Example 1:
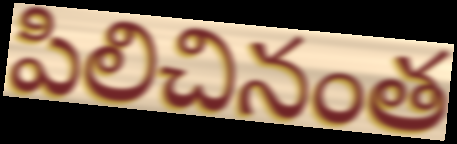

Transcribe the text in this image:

పిలిచినంత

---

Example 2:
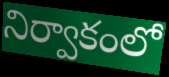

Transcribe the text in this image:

నిర్వాకంలో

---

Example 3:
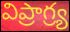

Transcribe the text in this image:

విప్రాగ్ర్య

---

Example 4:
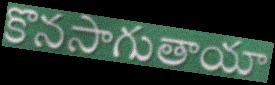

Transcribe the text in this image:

కొనసాగుతాయా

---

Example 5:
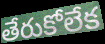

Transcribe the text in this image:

తేరుకోలేక